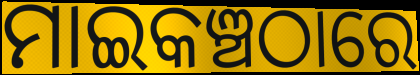
ମାଇକଞ୍ଚଠାରେ